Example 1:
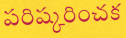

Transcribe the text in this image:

పరిష్కరించక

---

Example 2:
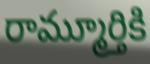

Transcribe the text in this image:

రామ్మూర్తికి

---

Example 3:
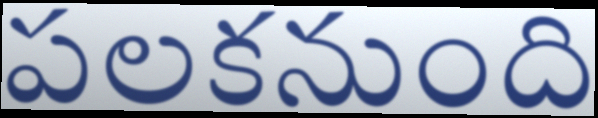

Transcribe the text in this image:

పలకనుంది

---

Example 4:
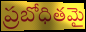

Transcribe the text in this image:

ప్రబోధితమై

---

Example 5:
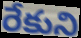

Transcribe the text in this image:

రేకుని